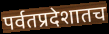
पर्वतप्रदेशातच